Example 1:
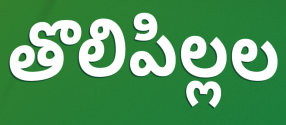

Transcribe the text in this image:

తొలిపిల్లల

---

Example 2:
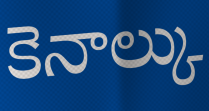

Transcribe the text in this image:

కెనాల్కు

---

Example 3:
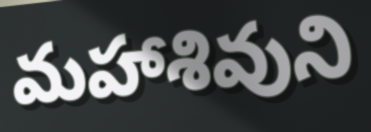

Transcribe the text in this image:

మహాశివుని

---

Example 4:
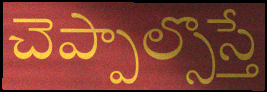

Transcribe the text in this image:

చెప్పాల్సొస్తే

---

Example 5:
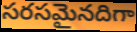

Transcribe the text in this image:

సరసమైనదిగా